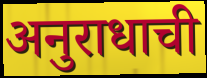
अनुराधाची